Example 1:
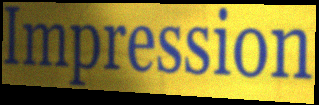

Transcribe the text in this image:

Impression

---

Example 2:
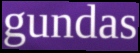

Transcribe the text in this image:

gundas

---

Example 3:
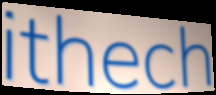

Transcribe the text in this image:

ithech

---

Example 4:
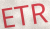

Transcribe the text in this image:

ETR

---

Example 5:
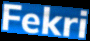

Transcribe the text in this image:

Fekri